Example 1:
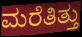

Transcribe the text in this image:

ಮರೆತಿತ್ತು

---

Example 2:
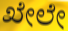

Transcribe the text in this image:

ಖೇಲೇ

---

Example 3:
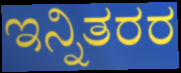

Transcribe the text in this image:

ಇನ್ನಿತರರ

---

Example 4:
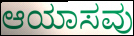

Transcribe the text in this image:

ಆಯಾಸವು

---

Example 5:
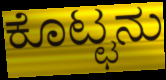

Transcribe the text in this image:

ಕೊಟ್ಟನು